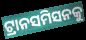
ଟ୍ରାନସମିସନକୁ